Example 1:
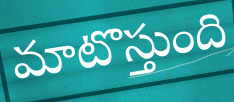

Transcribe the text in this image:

మాటొస్తుంది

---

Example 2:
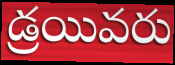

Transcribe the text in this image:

డ్రయివరు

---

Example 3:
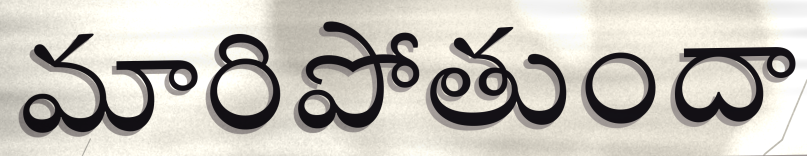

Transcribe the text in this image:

మారిపోతుందా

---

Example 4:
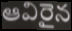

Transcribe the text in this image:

ఆవిరైన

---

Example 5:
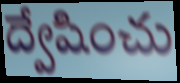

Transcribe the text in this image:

ద్వేషించు